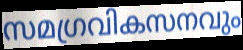
സമഗ്രവികസനവും